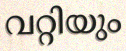
വറ്റിയും